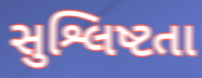
સુશ્લિષ્ટતા